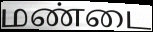
மண்டை